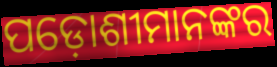
ପଡ଼ୋଶୀମାନଙ୍କର